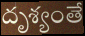
దృశ్యంతే